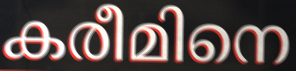
കരീമിനെ